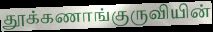
தூக்கணாங்குருவியின்